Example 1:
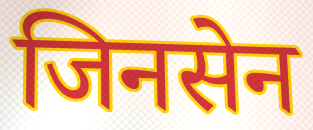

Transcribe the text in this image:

जिनसेन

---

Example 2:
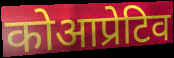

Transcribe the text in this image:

कोआप्रेटिव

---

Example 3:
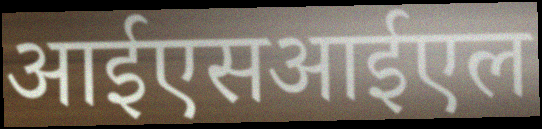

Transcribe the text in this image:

आईएसआईएल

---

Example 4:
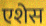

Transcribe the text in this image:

एशेस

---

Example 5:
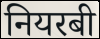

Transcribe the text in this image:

नियरबी